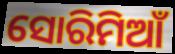
ସୋରିମିଆଁ